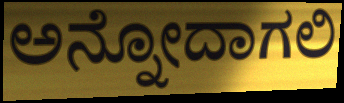
ಅನ್ನೋದಾಗಲಿ